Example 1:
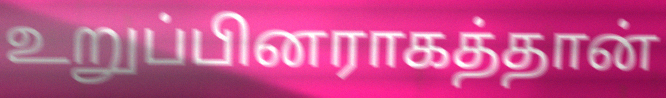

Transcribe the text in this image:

உறுப்பினராகத்தான்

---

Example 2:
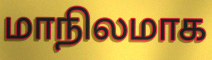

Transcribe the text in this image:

மாநிலமாக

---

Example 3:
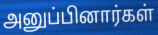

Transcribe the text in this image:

அனுப்பினார்கள்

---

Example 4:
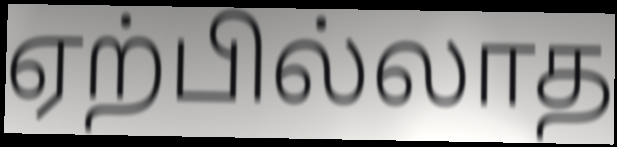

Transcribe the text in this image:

ஏற்பில்லாத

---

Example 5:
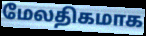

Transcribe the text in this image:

மேலதிகமாக